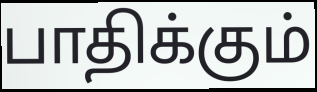
பாதிக்கும்